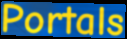
Portals